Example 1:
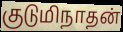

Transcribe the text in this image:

குடுமிநாதன்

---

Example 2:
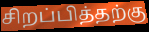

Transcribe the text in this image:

சிறப்பித்தற்கு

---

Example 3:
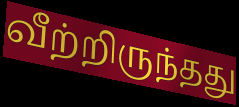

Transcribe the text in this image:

வீற்றிருந்தது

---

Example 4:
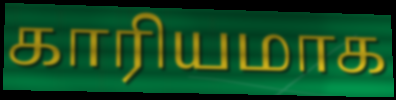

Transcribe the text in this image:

காரியமாக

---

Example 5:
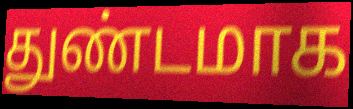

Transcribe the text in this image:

துண்டமாக